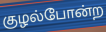
குழல்போன்ற